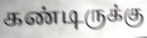
கண்டிருக்கு